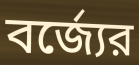
বর্জ্যের